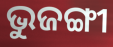
ଭୁଜଙ୍ଗୀ